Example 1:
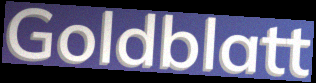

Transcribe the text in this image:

Goldblatt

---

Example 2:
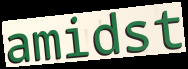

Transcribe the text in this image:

amidst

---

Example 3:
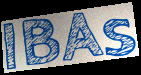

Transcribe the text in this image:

IBAs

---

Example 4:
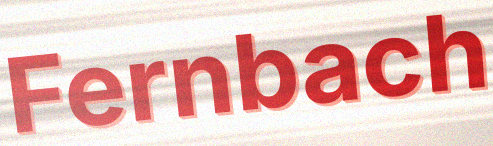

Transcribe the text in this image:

Fernbach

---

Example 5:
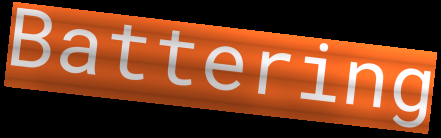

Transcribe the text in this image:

Battering